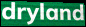
dryland